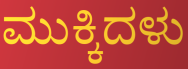
ಮುಕ್ಕಿದಳು